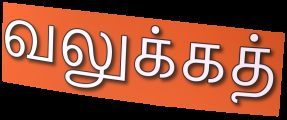
வலுக்கத்